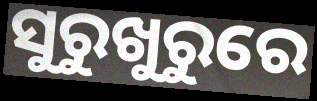
ସୁରୁଖୁରୁରେ